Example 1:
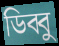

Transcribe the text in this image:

ডিব্বু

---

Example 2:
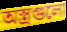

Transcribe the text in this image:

অস্ত্রগুলো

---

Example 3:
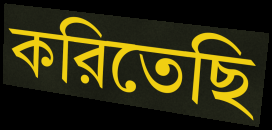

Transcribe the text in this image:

করিতেছি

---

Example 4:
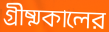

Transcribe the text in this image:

গ্রীষ্মকালের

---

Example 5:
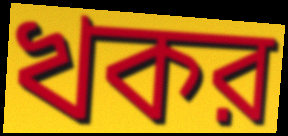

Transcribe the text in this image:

খকর